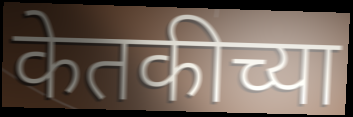
केतकीच्या